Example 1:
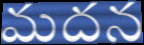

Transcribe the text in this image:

మదన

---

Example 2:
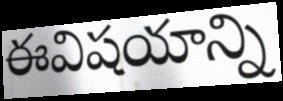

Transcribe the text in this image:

ఈవిషయాన్ని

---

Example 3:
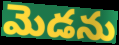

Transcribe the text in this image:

మెడను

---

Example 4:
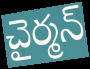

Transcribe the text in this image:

చైర్మన్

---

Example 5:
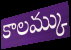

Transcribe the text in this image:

కాలమ్కు